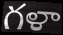
గళా